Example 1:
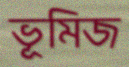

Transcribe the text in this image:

ভূমিজ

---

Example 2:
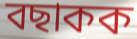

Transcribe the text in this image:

বছাকক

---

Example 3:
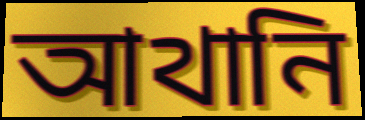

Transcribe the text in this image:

আথানি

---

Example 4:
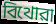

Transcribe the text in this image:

বিথোৱা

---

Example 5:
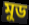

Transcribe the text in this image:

মুড